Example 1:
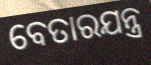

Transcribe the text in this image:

ବେତାରଯନ୍ତ୍ର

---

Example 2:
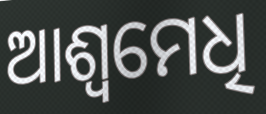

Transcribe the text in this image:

ଆଶ୍ୱମେଧି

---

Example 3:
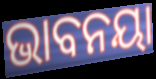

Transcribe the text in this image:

ଭାବନୟା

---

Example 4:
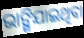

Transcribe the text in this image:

ଭାଙ୍ଗିଯାଇଥିବା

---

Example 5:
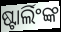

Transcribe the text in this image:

ଷ୍ଟାର୍ଲିଂଙ୍କ